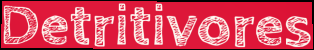
Detritivores